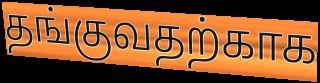
தங்குவதற்காக